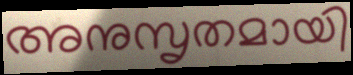
അനുസൃതമായി